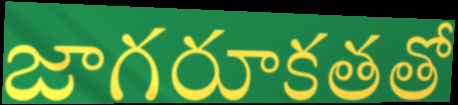
జాగరూకతతో